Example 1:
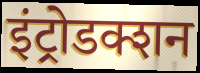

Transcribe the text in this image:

इंट्रोडक्शन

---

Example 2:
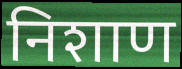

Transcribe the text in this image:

निशाण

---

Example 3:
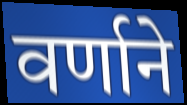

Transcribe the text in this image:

वर्णाने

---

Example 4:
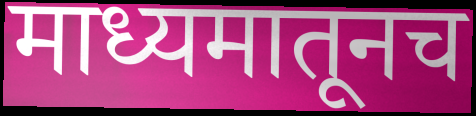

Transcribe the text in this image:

माध्यमातूनच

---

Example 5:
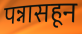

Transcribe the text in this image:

पन्नासहून